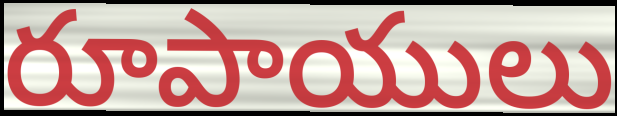
రూపాయులు